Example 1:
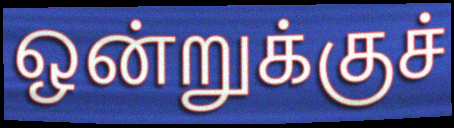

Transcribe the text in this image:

ஒன்றுக்குச்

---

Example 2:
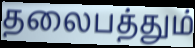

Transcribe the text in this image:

தலைபத்தும்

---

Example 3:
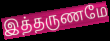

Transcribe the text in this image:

இத்தருணமே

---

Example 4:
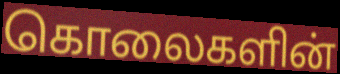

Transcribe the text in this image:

கொலைகளின்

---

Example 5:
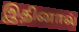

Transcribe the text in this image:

இதினால்